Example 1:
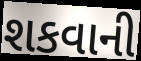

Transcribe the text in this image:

શકવાની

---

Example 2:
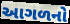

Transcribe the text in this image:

આગળનો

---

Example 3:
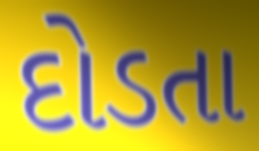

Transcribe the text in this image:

દોડતા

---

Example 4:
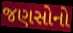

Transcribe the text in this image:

જણસોનો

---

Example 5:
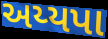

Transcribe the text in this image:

અય્યપા